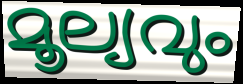
മൂല്യവും